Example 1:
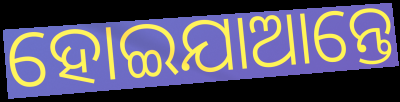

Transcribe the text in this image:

ହୋଇଯାଆନ୍ତେ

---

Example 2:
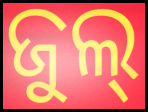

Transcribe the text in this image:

ଜୁଲ୍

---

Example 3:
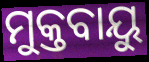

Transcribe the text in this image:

ମୁକ୍ତବାୟୁ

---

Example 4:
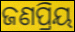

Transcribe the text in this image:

ଜଣପ୍ରିୟ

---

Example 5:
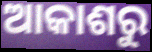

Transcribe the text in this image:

ଆକାଶରୁ